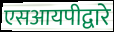
एसआयपीद्वारे